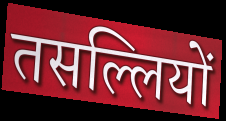
तसल्लियों